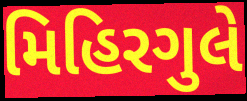
મિહિરગુલે